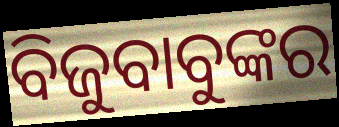
ବିଜୁବାବୁଙ୍କର